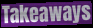
Takeaways